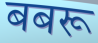
बबरू